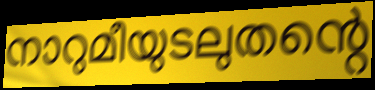
നാറുമീയുടലുതന്റെ